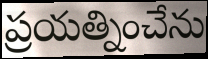
ప్రయత్నించేను